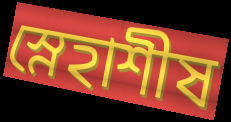
স্নেহাশীষ